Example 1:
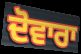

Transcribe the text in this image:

ਦੋਵਾਰਾ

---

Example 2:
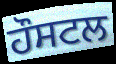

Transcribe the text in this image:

ਹੌਸਟਲ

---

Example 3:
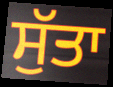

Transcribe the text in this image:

ਸੁੱਤਾ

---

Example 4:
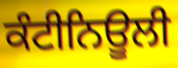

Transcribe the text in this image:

ਕੰਟੀਨਿਊਲੀ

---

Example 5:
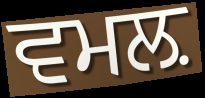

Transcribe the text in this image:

ਵਮਲ਼